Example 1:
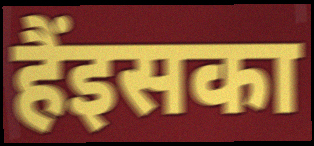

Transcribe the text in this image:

हैंइसका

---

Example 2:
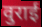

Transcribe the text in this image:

वुराई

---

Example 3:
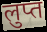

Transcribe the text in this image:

लुप्‍त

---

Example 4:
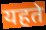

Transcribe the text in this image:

यहते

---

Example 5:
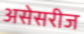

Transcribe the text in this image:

असेसरीज